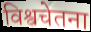
विश्वचेतना